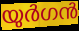
യുർഗൻ